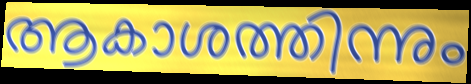
ആകാശത്തിന്നും